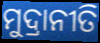
ମୁଦ୍ରାନୀତି